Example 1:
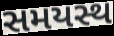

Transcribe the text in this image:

સમયસ્થ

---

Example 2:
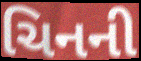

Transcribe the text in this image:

ચિનની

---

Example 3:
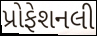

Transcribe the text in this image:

પ્રોફેશનલી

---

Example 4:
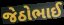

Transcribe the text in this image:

જેઠોભાઈ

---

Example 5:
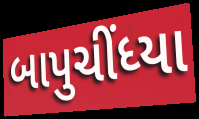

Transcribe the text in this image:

બાપુચીંધ્યા